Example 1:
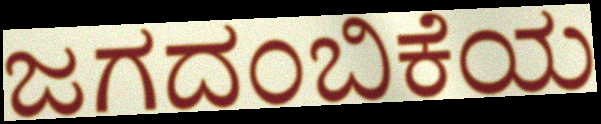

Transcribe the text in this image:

ಜಗದಂಬಿಕೆಯ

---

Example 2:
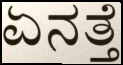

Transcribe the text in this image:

ಏನತ್ತೆ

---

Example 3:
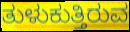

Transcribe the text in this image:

ತುಳುಕುತ್ತಿರುವ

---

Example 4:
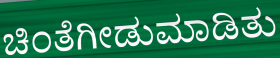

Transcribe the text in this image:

ಚಿಂತೆಗೀಡುಮಾಡಿತು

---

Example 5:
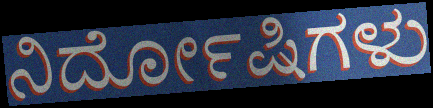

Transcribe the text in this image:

ನಿರ್ದೋಷಿಗಳು